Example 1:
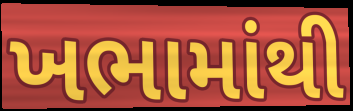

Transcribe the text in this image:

ખભામાંથી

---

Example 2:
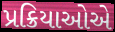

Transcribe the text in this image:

પ્રક્રિયાઓએ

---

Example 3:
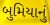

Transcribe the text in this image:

બુમિયાનું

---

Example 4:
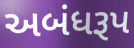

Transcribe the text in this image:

અબંધરૂપ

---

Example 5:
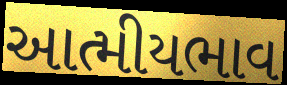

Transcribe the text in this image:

આત્મીયભાવ